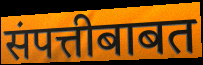
संपत्तीबाबत